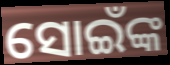
ସୋଇଁଙ୍କ